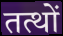
तत्थों